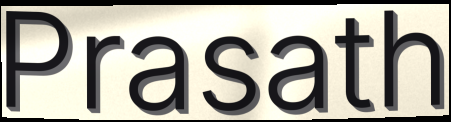
Prasath